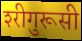
श्रीगुरूसी